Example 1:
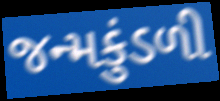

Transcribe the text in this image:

જન્મકુંડળી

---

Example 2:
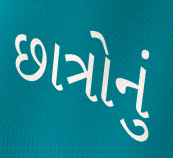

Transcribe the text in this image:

છાત્રોનું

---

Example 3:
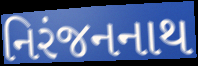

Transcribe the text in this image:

નિરંજનનાથ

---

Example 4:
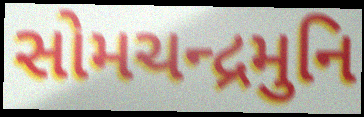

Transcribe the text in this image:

સોમચન્દ્રમુનિ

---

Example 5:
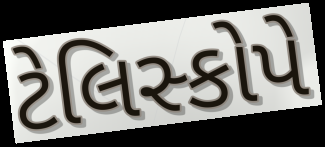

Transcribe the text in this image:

ટેલિસ્કોપે